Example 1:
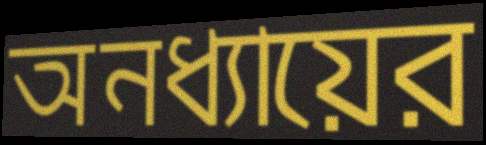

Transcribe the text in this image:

অনধ্যায়ের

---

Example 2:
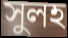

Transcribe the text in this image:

সুলহ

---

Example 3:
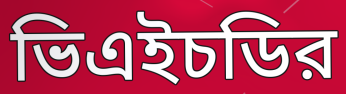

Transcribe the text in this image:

ভিএইচডির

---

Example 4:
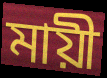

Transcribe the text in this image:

মায়ী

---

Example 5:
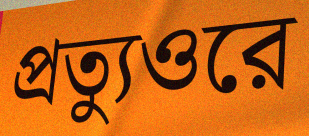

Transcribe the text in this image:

প্রত্যুওরে